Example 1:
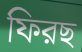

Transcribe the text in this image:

ফিরছ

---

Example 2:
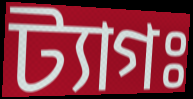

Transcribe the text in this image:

ট্যাগঃ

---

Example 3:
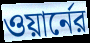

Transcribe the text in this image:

ওয়ার্নের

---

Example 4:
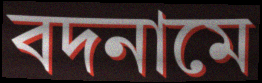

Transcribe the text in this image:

বদনামে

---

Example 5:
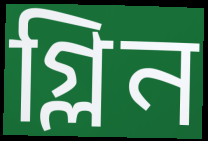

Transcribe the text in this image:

গ্লিন